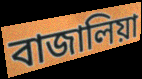
বাজালিয়া